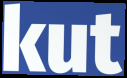
kut